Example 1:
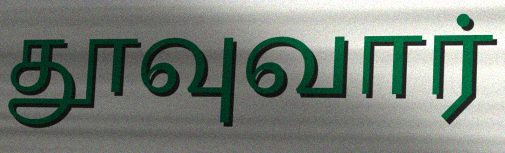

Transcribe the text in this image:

தூவுவார்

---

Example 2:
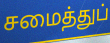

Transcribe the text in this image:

சமைத்துப்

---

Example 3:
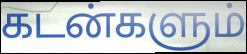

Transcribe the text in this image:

கடன்களும்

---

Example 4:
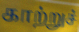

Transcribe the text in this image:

காற்றுச்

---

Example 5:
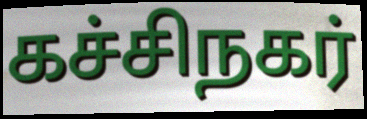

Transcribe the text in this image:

கச்சிநகர்